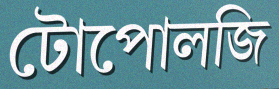
টোপোলজি